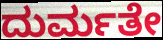
ದುರ್ಮತೇ